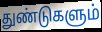
துண்டுகளும்